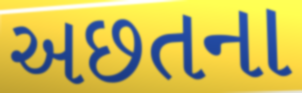
અછતના